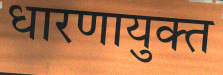
धारणायुक्त